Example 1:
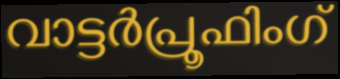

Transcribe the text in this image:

വാട്ടർപ്രൂഫിംഗ്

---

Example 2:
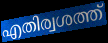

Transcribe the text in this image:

എതിര്വശത്ത്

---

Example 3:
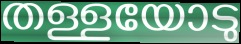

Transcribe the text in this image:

തള്ളയോടു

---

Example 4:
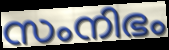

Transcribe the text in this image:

സംനിഭം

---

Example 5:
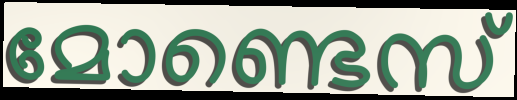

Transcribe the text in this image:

മോണ്ടെസ്